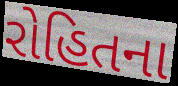
રોહિતના